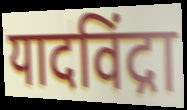
यादविंद्रा